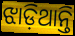
ଝାଡ଼ିଥାନ୍ତି